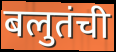
बलुतंची